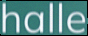
halle